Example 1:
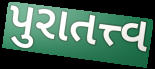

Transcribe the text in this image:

પુરાતત્ત્વ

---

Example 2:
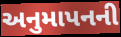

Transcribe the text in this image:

અનુમાપનની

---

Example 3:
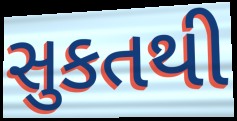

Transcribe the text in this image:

સુકતથી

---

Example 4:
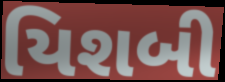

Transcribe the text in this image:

યિશબી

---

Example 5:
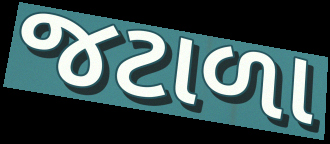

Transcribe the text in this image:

જટાળા